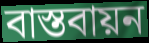
বাস্তবায়ন